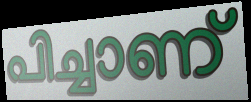
പിച്ചാണ്